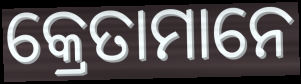
କ୍ରେତାମାନେ